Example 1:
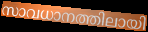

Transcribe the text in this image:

സാവധാനത്തിലായി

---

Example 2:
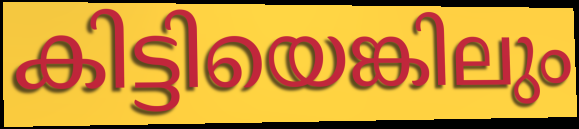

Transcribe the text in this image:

കിട്ടിയെങ്കിലും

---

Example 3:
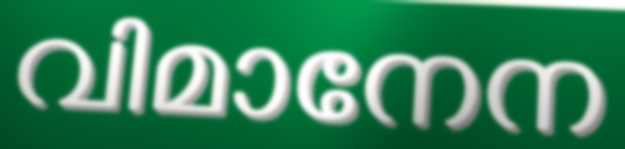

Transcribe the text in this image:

വിമാനേന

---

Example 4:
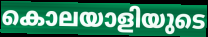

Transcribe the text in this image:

കൊലയാളിയുടെ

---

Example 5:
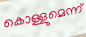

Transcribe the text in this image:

കൊള്ളുമെന്ന്